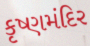
કૃષ્ણમંદિર